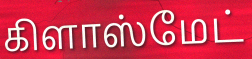
கிளாஸ்மேட்